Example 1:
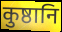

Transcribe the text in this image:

कुष्ठानि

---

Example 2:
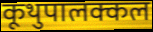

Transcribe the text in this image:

कूथुपालक्कल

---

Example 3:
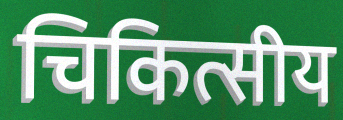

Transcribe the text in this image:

चिकित्सीय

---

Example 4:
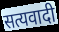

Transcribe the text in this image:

सत्यवादी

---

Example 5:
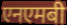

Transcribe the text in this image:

एनएमबी